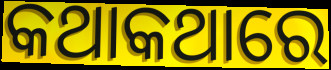
କଥାକଥାରେ